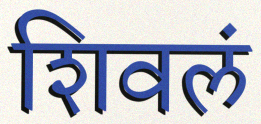
शिवलं